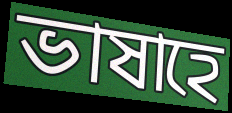
ভাষাহে